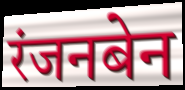
रंजनबेन